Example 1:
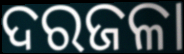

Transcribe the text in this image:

ଦରଜଳା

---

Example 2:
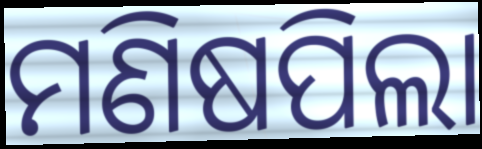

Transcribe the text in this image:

ମଣିଷପିଲା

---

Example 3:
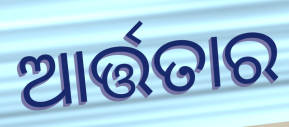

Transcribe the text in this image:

ଆର୍ତ୍ତତାର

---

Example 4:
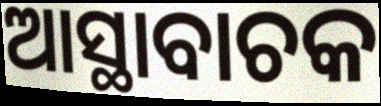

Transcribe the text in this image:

ଆସ୍ଥାବାଚକ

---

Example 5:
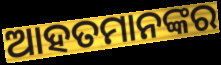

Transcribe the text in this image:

ଆହତମାନଙ୍କର